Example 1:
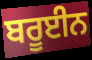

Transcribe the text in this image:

ਬਰੂਈਨ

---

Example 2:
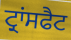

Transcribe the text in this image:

ਟ੍ਰਾਂਸਫੈਟ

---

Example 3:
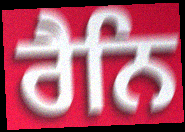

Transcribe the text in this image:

ਰੈਨਿ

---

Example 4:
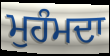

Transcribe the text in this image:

ਮੁਹੰਮਦਾ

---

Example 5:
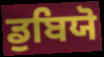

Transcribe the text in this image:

ਡੁਬਿਯੋ